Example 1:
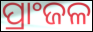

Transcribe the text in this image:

ପ୍ରାଂଜଳ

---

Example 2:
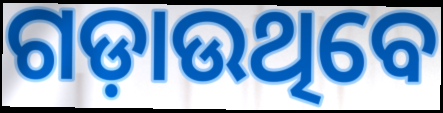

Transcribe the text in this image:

ଗଡ଼ାଉଥିବେ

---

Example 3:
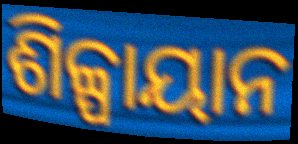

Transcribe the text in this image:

ଶିଳ୍ପାୟାନ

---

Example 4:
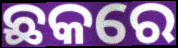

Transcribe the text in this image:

ଛକରେ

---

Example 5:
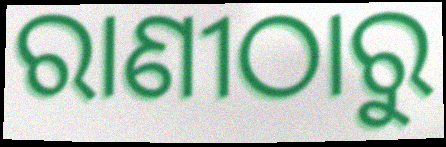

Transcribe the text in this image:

ରାଣୀଠାରୁ